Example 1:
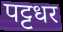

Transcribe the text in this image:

पट्टधर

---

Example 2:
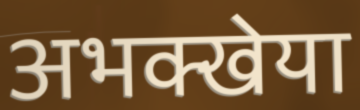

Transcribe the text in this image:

अभक्खेया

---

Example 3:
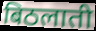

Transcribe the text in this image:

बिठलाती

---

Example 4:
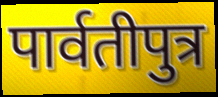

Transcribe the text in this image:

पार्वतीपुत्र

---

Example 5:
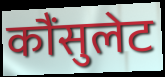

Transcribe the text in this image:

कौंसुलेट